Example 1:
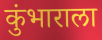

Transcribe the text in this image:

कुंभाराला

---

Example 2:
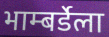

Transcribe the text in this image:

भाम्बर्डेला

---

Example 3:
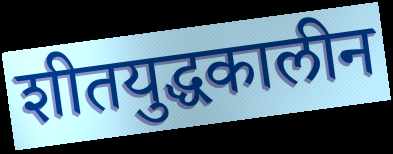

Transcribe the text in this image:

शीतयुद्धकालीन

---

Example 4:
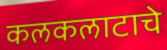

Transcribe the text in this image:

कलकलाटाचे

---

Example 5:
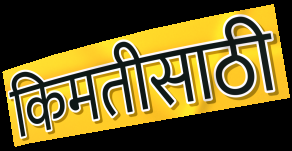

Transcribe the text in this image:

किमतीसाठी